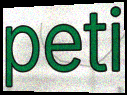
peti